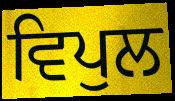
ਵਿਪੁਲ